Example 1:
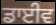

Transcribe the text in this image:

ਡਾਈਵ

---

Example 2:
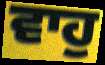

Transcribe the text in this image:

ਵਾਹੁ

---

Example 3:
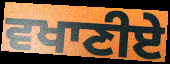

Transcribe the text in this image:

ਵਖਾਣੀਏ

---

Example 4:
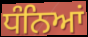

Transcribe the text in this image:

ਧੰਨਿਆਂ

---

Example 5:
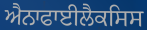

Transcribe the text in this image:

ਐਨਾਫਾਈਲੈਕਸਿਸ